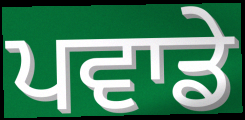
ਪਵਾਡੇ